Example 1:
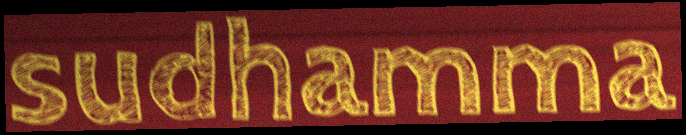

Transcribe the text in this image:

sudhamma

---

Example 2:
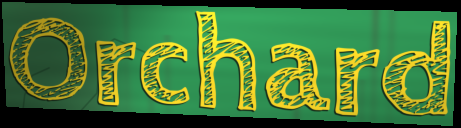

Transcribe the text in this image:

Orchard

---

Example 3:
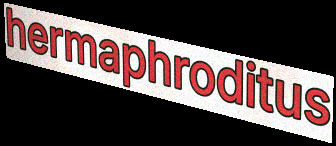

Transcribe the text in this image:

hermaphroditus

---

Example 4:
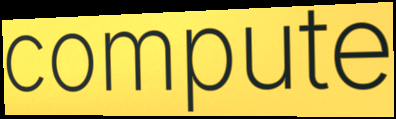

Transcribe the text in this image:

compute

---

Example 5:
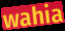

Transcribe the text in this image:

wahia